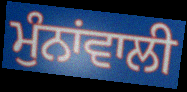
ਮੁੰਨਾਂਵਾਲੀ